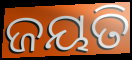
ଜୟତି